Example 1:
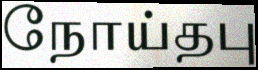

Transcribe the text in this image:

நோய்தபு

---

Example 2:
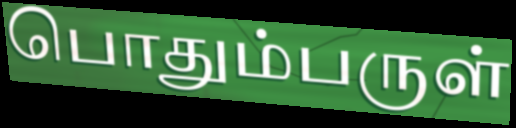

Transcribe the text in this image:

பொதும்பருள்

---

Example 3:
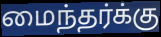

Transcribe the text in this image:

மைந்தர்க்கு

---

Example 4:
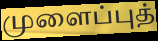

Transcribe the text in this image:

முளைப்புத்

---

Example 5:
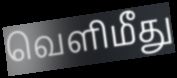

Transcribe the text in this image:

வெளிமீது